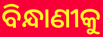
ବିନ୍ଧାଣୀକୁ